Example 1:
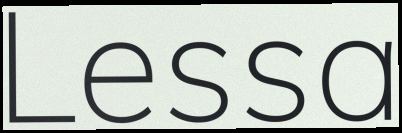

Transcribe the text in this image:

Lessa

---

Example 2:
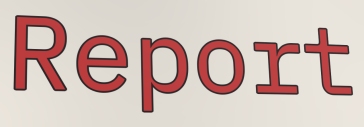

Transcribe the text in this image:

Report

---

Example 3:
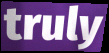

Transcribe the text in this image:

truly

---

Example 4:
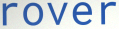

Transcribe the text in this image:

rover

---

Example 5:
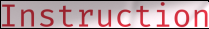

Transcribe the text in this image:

Instruction